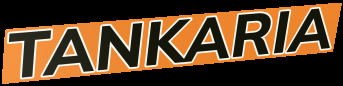
TANKARIA